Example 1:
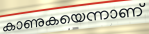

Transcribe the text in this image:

കാണുകയെന്നാണ്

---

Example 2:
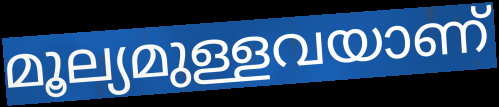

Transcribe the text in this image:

മൂല്യമുള്ളവയാണ്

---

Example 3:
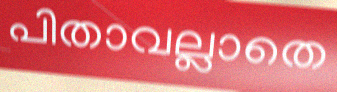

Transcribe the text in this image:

പിതാവല്ലാതെ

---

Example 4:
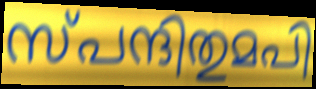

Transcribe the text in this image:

സ്പന്ദിതുമപി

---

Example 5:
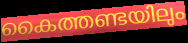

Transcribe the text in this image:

കൈത്തണ്ടയിലും